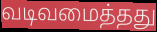
வடிவமைத்தது